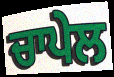
ਚਾਪੇਲ